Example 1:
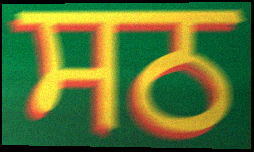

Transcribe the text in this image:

ਸਠ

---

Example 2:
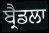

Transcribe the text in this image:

ਬ੍ਰੈਡਲਾ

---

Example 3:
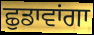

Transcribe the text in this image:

ਛੁਡਾਵਾਂਗਾ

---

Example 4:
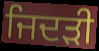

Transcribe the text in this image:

ਜਿਦੜੀ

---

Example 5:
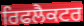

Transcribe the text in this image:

ਰਿਫਲੈਕਟਰ